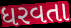
ધરવતા